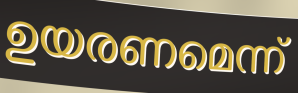
ഉയരണമെന്ന്